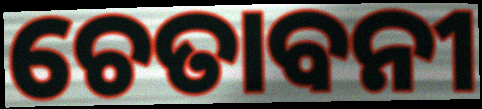
ଚେତାବନୀ